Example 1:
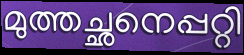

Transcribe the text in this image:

മുത്തച്ഛനെപ്പറ്റി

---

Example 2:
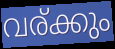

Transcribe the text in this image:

വര്ക്കും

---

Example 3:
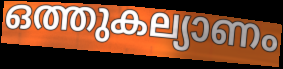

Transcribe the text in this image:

ഒത്തുകല്യാണം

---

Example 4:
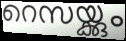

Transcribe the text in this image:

റെസയ്ക്കും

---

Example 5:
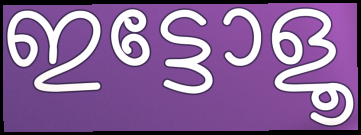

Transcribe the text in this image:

ഇട്ടോളൂ